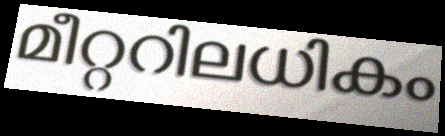
മീറ്ററിലധികം